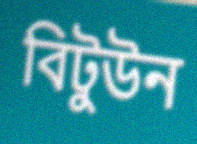
বিটুউন